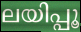
ലയിപ്പൂ